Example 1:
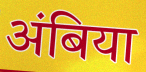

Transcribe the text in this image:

अंबिया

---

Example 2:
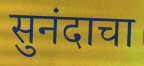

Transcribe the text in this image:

सुनंदाचा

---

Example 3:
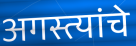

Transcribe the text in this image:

अगस्त्यांचे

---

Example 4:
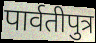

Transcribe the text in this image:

पार्वतीपुत्र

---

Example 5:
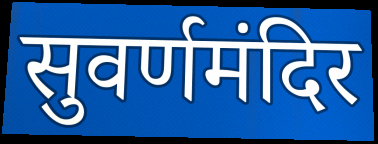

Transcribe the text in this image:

सुवर्णमंदिर